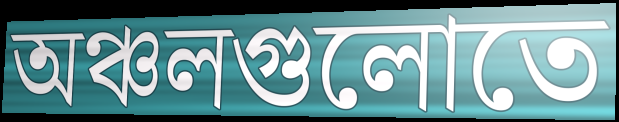
অঞ্চলগুলোতে